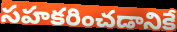
సహకరించడానికే